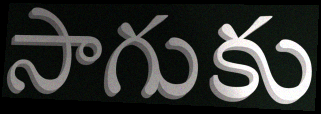
సాగుకు